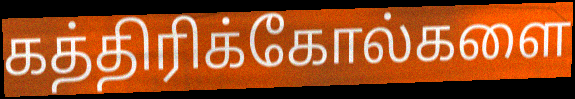
கத்திரிக்கோல்களை